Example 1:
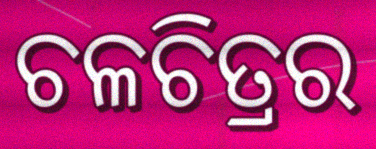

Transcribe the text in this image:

ଚଳଚିତ୍ରର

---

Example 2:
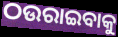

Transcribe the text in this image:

ଠଉରାଇବାକୁ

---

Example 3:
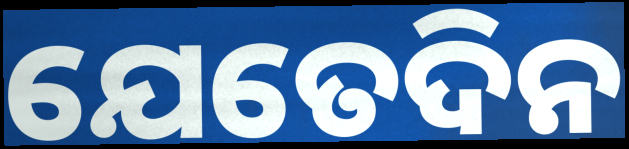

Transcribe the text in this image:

ଯେତେଦିନ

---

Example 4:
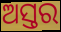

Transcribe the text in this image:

ଅସ୍ତର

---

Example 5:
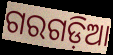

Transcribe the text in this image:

ଗରଗଡ଼ିଆ